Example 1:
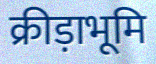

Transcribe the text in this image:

क्रीड़ाभूमि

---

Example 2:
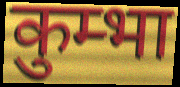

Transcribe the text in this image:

कुम्भा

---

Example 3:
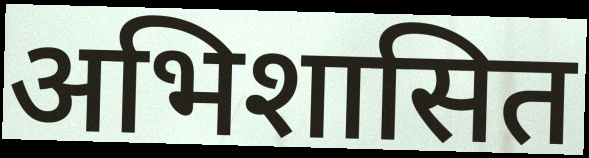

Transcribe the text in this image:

अभिशासित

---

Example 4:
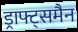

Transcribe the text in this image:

ड्राफ्ट्समैन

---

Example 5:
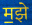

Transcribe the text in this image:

म॒झे